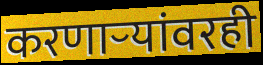
करणाऱ्यांवरही